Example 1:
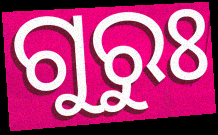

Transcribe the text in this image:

ଗୁରୁଃ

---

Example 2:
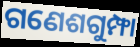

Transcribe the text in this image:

ଗଣେଶଗୁମ୍ଫା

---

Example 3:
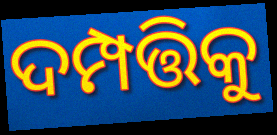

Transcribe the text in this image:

ଦମ୍ପତ୍ତିକୁ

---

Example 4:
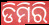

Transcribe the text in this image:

ଡିମିରି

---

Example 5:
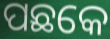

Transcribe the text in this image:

ପଛକେ